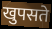
खुपसते